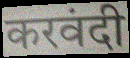
करवंदी